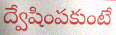
ద్వేషింపకుంటే